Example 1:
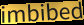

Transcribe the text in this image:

imbibed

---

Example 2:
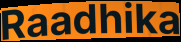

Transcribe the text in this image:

Raadhika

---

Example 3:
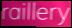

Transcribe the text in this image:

raillery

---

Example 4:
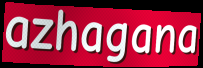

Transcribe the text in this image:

azhagana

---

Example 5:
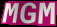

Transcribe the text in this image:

MGM